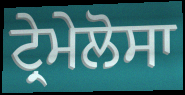
ਟ੍ਰੇਮੇਲੋਸਾ